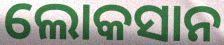
ଲୋକସାନ